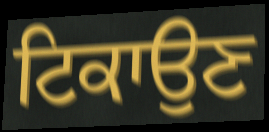
ਟਿਕਾਉਣ